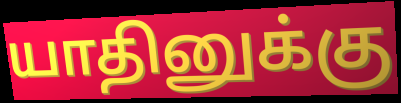
யாதினுக்கு